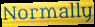
Normally